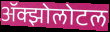
ॲक्झोलोटल